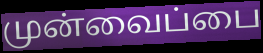
முன்வைப்பை